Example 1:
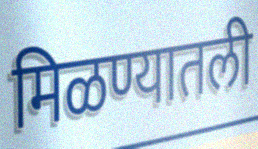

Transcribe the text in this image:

मिळण्यातली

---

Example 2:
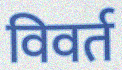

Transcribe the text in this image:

विवर्त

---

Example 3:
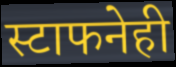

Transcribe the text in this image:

स्टाफनेही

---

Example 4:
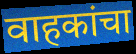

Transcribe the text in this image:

वाहकांचा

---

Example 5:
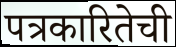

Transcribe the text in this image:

पत्रकारितेची